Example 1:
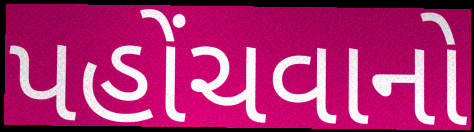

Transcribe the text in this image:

પહોંચવાનો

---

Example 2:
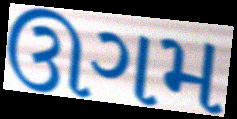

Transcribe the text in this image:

ઊગમ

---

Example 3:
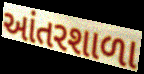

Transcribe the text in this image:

આંતરશાળા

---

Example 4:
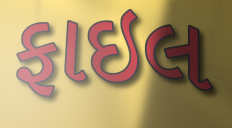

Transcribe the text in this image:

ફાઇલ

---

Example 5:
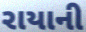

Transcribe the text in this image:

રાયાની